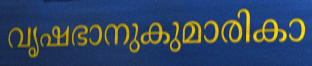
വൃഷഭാനുകുമാരികാ